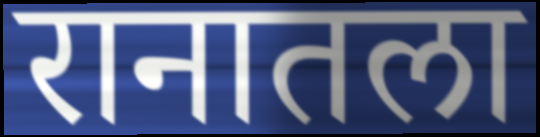
रानातला